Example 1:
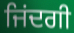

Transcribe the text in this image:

ਜਿਂਦਗੀ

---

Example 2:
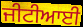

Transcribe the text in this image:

ਜੀਟੀਆਈ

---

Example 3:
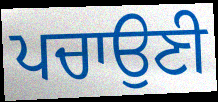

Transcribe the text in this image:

ਪਚਾਉਣੀ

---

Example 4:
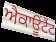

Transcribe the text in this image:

ਐਕਾਊਂਟੈਂਟ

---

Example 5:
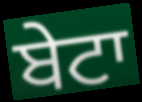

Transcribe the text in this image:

ਬੇਟਾ